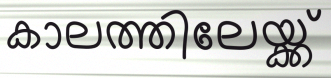
കാലത്തിലേയ്ക്ക്